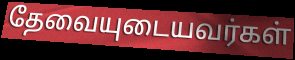
தேவையுடையவர்கள்